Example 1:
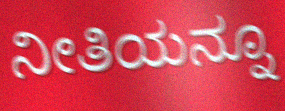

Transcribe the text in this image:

ನೀತಿಯನ್ನೂ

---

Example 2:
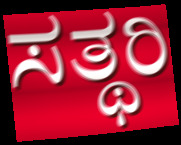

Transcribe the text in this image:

ಸತ್ಥರಿ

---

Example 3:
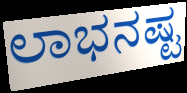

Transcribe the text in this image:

ಲಾಭನಷ್ಟ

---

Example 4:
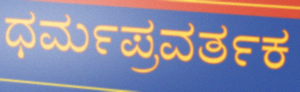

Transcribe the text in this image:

ಧರ್ಮಪ್ರವರ್ತಕ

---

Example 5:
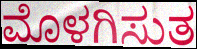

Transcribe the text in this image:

ಮೊಳಗಿಸುತ